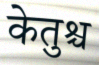
केतुश्च